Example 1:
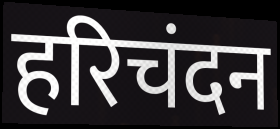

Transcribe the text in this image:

हरिचंदन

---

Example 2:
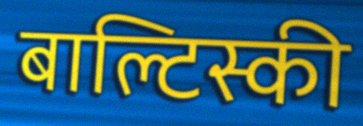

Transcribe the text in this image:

बाल्टिस्की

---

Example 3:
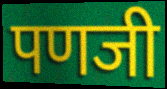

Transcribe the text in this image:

पणजी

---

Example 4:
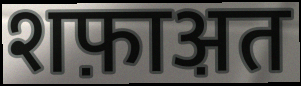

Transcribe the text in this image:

शफ़ाअ़त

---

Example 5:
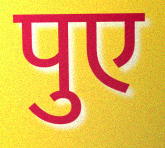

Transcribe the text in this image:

पुए